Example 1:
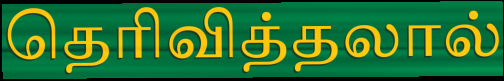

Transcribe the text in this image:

தெரிவித்தலால்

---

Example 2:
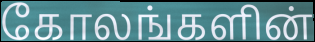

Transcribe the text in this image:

கோலங்களின்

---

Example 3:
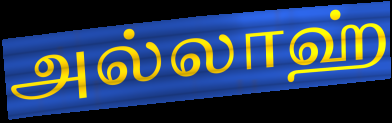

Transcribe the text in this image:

அல்லாஹ்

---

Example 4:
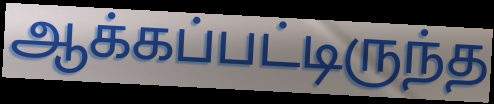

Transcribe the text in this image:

ஆக்கப்பட்டிருந்த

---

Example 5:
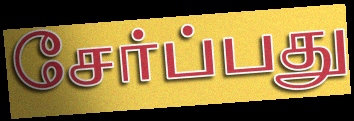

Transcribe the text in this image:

சேர்ப்பது